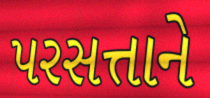
પરસત્તાને